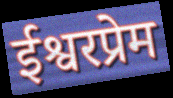
ईश्वरप्रेम